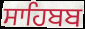
ਸਾਹਿਬਬ